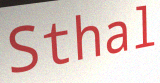
Sthal